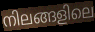
നിലങ്ങളിലെ